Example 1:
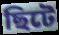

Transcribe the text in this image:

ছিটে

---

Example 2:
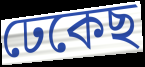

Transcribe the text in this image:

ঢেকেছ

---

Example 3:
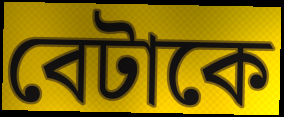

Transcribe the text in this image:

বেটাকে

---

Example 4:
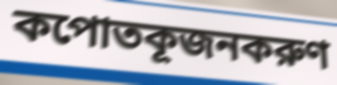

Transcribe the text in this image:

কপোতকূজনকরুণ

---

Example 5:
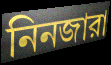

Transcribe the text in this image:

নিনজারা